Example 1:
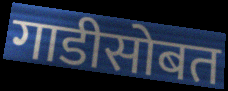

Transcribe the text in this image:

गाडीसोबत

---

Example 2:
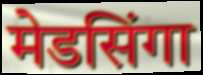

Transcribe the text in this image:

मेडसिंगा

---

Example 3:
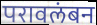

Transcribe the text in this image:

परावलंबन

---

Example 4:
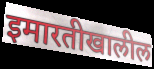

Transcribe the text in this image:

इमारतीखालील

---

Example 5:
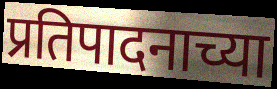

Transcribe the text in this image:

प्रतिपादनाच्या